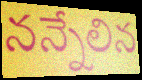
నన్నేలిన